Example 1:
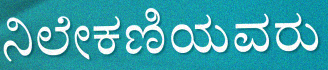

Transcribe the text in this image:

ನಿಲೇಕಣಿಯವರು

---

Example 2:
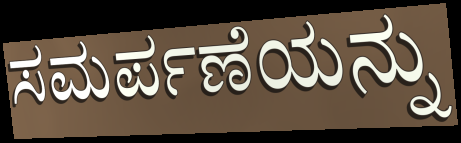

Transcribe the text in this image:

ಸಮರ್ಪಣೆಯನ್ನು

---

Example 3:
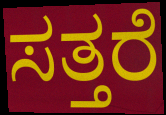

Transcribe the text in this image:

ಸತ್ತರೆ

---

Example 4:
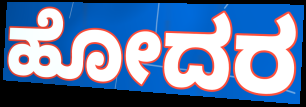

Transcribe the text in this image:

ಹೋದರ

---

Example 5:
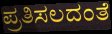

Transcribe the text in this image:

ಪ್ರತಿಸಲದಂತೆ